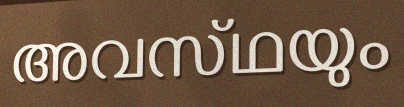
അവസ്‌ഥയും